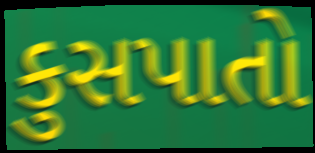
કુસપાતો